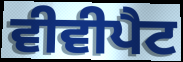
ਵੀਵੀਪੈਟ